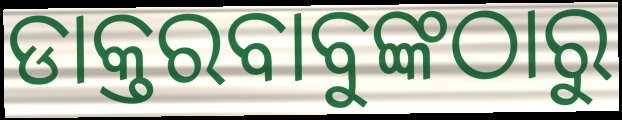
ଡାକ୍ତରବାବୁଙ୍କଠାରୁ